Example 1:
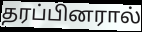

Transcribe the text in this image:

தரப்பினரால்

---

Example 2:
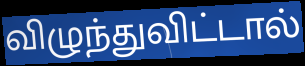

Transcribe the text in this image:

விழுந்துவிட்டால்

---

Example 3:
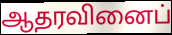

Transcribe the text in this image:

ஆதரவினைப்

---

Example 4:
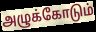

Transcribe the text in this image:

அழுக்கோடும்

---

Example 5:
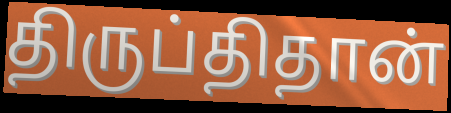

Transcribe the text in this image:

திருப்திதான்